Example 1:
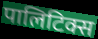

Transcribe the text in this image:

पालिटिक्स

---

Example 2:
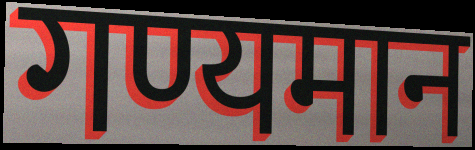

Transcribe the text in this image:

गण्यमान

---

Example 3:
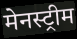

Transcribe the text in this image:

मेनस्‍ट्रीम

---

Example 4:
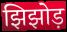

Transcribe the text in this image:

झिझोड़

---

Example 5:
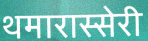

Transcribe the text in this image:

थमारास्सेरी